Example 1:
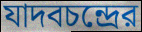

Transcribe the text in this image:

যাদবচন্দ্রের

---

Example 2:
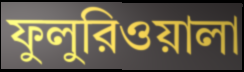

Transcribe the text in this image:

ফুলুরিওয়ালা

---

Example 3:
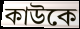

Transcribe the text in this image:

কাউকে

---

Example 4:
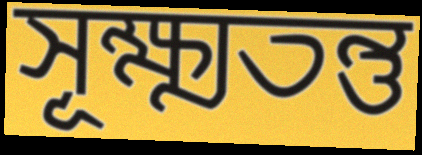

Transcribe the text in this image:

সূক্ষ্মতন্তু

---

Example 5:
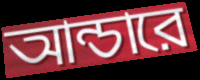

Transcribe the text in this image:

আন্ডারে